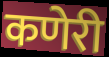
कणेरी